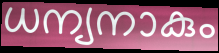
ധന്യനാകും